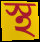
স্থ